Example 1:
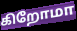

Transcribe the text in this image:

கிறோமா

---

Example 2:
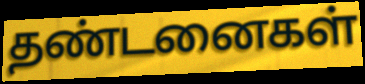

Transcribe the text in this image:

தண்டனைகள்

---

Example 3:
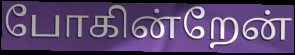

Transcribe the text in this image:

போகின்றேன்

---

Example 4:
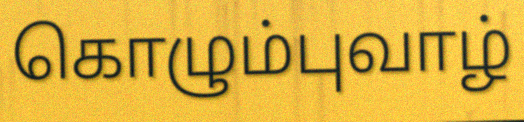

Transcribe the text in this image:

கொழும்புவாழ்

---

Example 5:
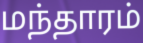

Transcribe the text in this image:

மந்தாரம்